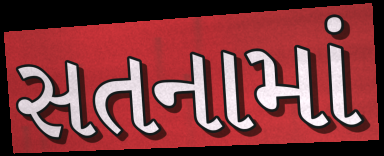
સતનામાં